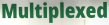
Multiplexed